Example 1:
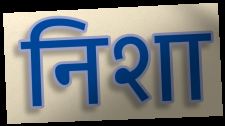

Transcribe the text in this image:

निशा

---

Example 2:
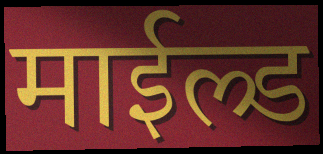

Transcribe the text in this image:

माईल्ड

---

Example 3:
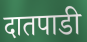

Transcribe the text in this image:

दातपाडी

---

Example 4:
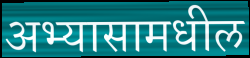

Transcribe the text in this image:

अभ्यासामधील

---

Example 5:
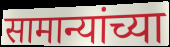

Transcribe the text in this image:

सामान्यांच्या